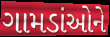
ગામડાંઓને